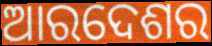
ଆରଦେଶର